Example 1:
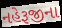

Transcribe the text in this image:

નહેરૂજીના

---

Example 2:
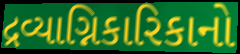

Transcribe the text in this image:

દ્રવ્યાગ્નિકારિકાનો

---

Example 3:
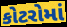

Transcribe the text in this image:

કોટરોમાં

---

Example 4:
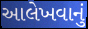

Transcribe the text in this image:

આલેખવાનું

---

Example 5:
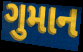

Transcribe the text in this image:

ગુમાન